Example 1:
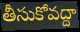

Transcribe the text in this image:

తీసుకోవద్దా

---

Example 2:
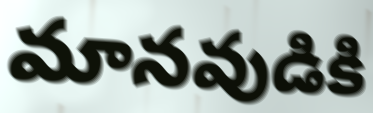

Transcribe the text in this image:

మానవుడికి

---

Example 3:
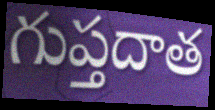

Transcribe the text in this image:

గుప్తదాత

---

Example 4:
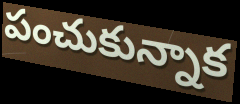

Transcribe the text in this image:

పంచుకున్నాక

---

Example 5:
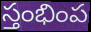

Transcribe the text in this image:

స్తంభింప